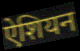
ऐशियन